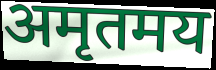
अमृतमय